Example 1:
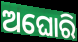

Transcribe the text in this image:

ଅଘୋରି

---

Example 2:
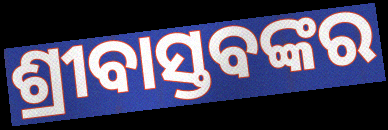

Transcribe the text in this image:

ଶ୍ରୀବାସ୍ତବଙ୍କର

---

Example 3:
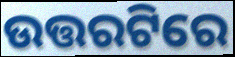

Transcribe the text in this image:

ଉତ୍ତରଟିରେ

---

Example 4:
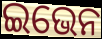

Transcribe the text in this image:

ଇଭେନ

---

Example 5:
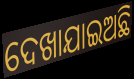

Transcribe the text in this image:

ଦେଖାଯାଇଅଛି